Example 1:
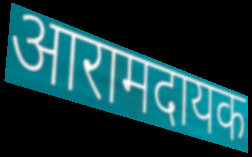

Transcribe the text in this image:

आरामदायक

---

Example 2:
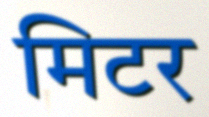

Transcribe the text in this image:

मिटर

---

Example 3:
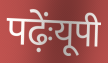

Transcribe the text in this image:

पढ़ेंःयूपी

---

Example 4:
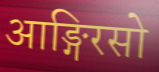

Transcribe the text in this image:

आङ्गिरसो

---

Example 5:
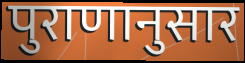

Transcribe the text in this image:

पुराणानुसार